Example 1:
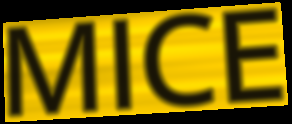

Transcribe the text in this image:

MICE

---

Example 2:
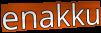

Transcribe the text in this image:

enakku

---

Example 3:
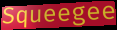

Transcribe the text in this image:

Squeegee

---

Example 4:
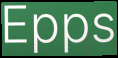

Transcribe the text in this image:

Epps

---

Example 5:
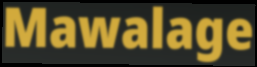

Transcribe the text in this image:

Mawalage